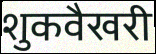
शुकवैखरी